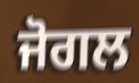
ਜੋਗਲ